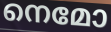
നെമോ